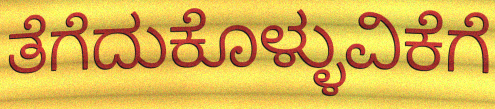
ತೆಗೆದುಕೊಳ್ಳುವಿಕೆಗೆ